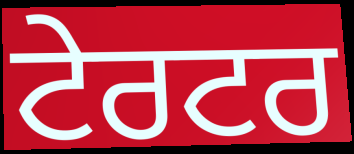
ਟੇਰਟਰ